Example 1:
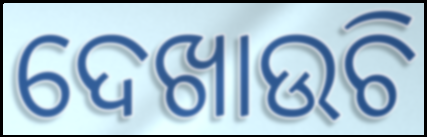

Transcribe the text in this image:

ଦେଖାଉଚି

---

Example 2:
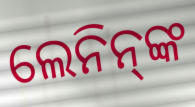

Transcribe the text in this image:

ଲେନିନ୍‌ଙ୍କ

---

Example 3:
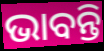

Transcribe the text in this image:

ଭାବନ୍ତି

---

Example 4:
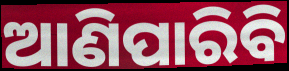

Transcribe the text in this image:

ଆଣିପାରିବି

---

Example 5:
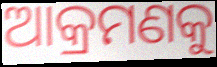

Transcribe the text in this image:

ଆକ୍ରମଣକୁ